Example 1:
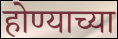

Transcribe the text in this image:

होण्याच्या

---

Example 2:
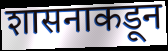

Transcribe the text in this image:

शासनाकडून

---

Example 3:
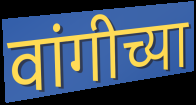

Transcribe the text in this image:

वांगीच्या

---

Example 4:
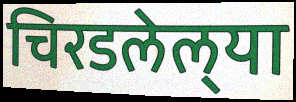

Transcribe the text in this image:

चिरडलेल्या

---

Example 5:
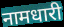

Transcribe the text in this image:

नामधारी